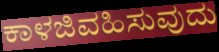
ಕಾಳಜಿವಹಿಸುವುದು